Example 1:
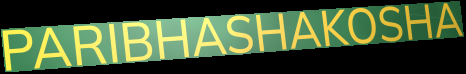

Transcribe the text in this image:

PARIBHASHAKOSHA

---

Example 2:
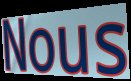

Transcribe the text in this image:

Nous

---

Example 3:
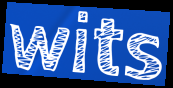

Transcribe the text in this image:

wits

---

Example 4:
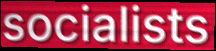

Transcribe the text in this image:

socialists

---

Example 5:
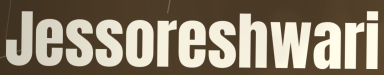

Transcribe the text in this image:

Jessoreshwari